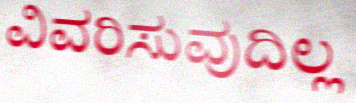
ವಿವರಿಸುವುದಿಲ್ಲ